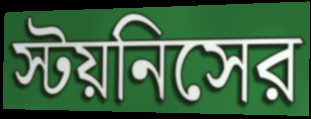
স্টয়নিসের